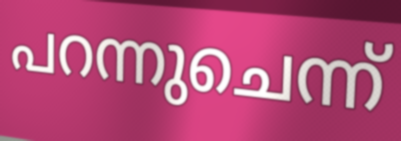
പറന്നുചെന്ന്